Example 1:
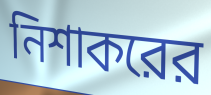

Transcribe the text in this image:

নিশাকরের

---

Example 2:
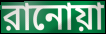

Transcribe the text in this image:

রানোয়া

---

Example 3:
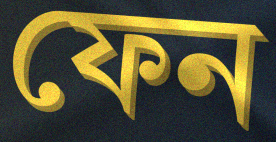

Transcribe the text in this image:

ফেন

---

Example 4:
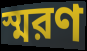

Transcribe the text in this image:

স্মরণ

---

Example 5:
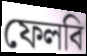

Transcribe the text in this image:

ফেলবি